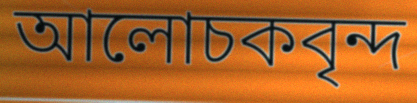
আলোচকবৃন্দ